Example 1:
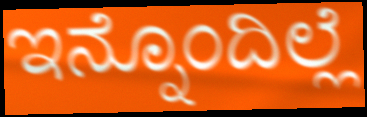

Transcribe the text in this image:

ಇನ್ನೊಂದಿಲ್ಲೆ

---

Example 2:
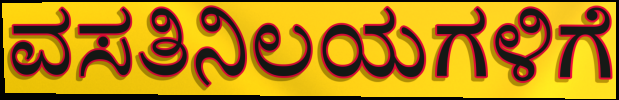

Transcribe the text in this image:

ವಸತಿನಿಲಯಗಳಿಗೆ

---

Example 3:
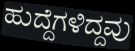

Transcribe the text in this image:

ಹುದ್ದೆಗಳಿದ್ದವು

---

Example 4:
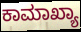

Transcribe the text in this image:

ಕಾಮಾಖ್ಯಾ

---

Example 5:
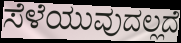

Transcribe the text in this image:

ಸೆಳೆಯುವುದಲ್ಲದೆ